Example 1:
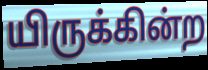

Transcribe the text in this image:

யிருக்கின்ற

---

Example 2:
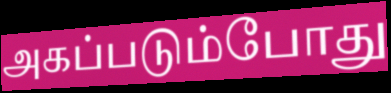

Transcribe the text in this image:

அகப்படும்போது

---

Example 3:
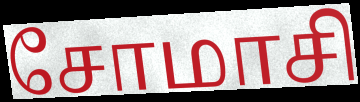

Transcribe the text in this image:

சோமாசி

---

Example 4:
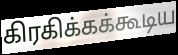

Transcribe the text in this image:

கிரகிக்கக்கூடிய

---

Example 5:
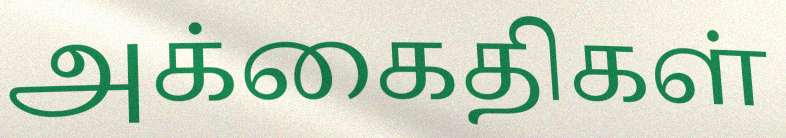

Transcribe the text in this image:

அக்கைதிகள்